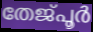
തേജ്പൂർ